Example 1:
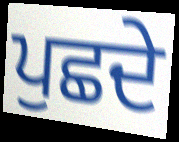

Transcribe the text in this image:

ਪੁਛਦੇ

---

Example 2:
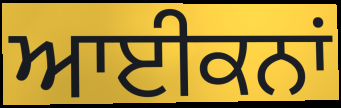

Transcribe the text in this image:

ਆਈਕਨਾਂ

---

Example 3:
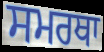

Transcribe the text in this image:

ਸਮਰਥਾ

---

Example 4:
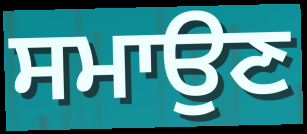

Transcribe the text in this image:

ਸਮਾਉਣ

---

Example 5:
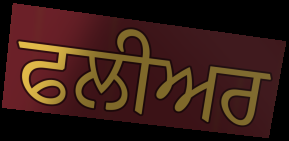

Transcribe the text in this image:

ਫਲੀਅਰ